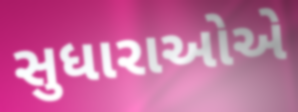
સુધારાઓએ